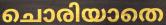
ചൊരിയാതെ